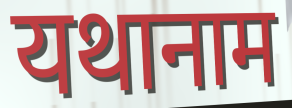
यथानाम